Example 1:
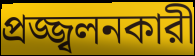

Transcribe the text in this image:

প্রজ্জ্বলনকারী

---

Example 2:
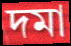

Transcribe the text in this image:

দমা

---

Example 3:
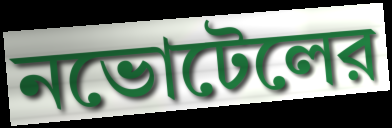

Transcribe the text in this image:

নভোটেলের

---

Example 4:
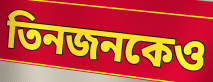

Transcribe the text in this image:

তিনজনকেও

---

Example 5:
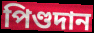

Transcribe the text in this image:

পিণ্ডদান